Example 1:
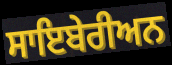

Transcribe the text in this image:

ਸਾਇਬੇਰੀਅਨ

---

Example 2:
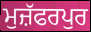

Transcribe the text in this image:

ਮੁਜ਼ੱਫਰਪੁਰ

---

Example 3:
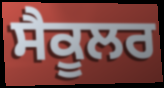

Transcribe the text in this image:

ਸੈਕੂਲਰ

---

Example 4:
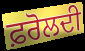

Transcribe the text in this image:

ਫ਼ਰੋਲਦੀ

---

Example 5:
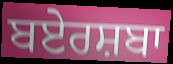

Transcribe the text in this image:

ਬਏਰਸ਼ਬਾ